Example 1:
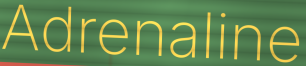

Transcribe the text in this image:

Adrenaline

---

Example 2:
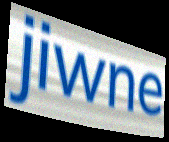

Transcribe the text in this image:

jiwne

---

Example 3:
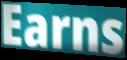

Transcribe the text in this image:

Earns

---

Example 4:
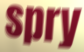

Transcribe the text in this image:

spry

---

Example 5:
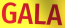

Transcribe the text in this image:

GALA